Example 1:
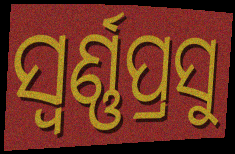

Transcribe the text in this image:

ସ୍ୱର୍ଣ୍ଣପ୍ରସୁ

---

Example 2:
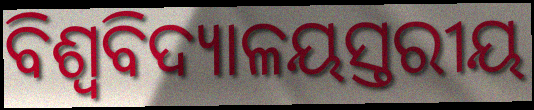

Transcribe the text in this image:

ବିଶ୍ଵବିଦ୍ୟାଳୟସ୍ତରୀୟ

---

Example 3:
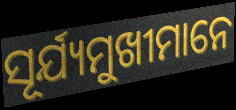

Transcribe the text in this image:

ସୂର୍ଯ୍ୟମୁଖୀମାନେ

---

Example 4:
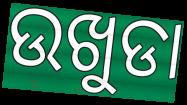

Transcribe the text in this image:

ଉଖୁଡା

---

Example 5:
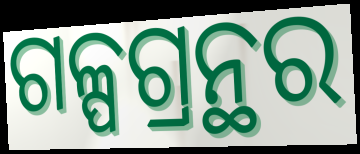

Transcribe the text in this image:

ଗଳ୍ପଗ୍ରନ୍ଥର